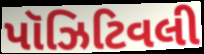
પૉઝિટિવલી